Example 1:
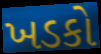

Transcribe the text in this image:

ખડકો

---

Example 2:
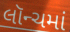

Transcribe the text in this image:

લૉન્ચમાં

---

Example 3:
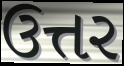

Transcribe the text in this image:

ઉત્તર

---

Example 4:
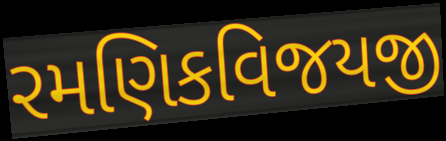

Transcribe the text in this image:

રમણિકવિજયજી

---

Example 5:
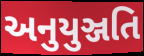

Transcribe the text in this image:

અનુયુઞ્જતિ